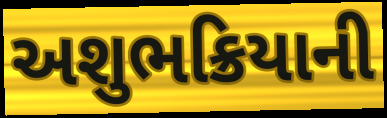
અશુભક્રિયાની